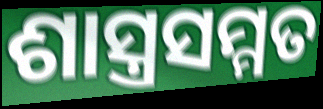
ଶାସ୍ତ୍ରସମ୍ମତ